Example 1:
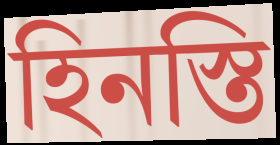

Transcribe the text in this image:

হিনস্তি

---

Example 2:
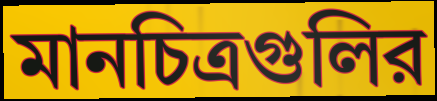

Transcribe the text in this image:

মানচিত্রগুলির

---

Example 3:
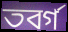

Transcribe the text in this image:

তবর্গ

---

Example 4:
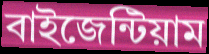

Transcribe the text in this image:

বাইজেন্টিয়াম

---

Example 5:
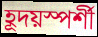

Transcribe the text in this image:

হূদয়স্পর্শী